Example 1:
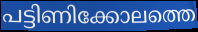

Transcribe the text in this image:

പട്ടിണിക്കോലത്തെ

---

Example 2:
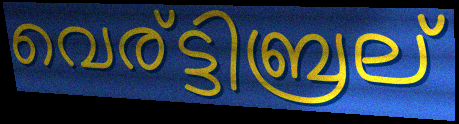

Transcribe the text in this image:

വെര്ട്ടിബ്രല്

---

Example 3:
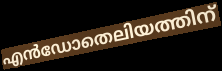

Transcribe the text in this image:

എൻഡോതെലിയത്തിന്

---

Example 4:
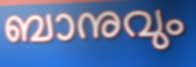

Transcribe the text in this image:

ബാനുവും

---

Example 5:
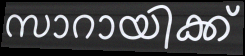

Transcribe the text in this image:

സാറായിക്ക്